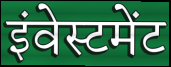
इंवेस्टमेंट